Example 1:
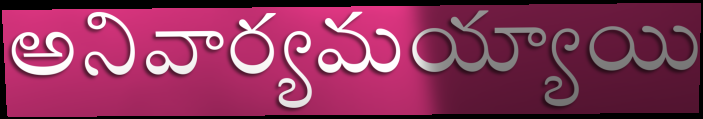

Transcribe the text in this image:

అనివార్యమయ్యాయి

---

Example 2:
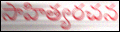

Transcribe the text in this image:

సాహిత్యరచన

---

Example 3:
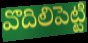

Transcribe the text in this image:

వొదిలిపెట్టి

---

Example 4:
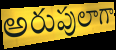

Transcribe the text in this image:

అరుపులాగా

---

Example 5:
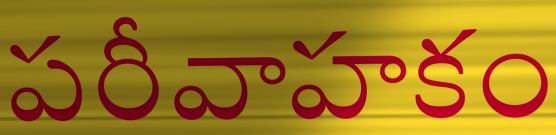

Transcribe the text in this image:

పరీవాహకం